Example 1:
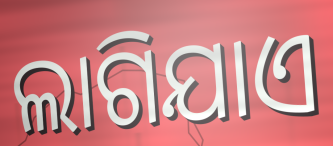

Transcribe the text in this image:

ଲାଗିଯାଏ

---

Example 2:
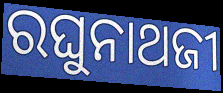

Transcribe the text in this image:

ରଘୁନାଥଜୀ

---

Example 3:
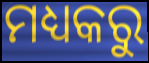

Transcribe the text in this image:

ମଧ୍ୟକରୁ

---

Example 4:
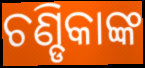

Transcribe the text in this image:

ଚଣ୍ଡିକାଙ୍କ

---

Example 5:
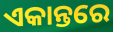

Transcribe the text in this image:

ଏକାନ୍ତରେ